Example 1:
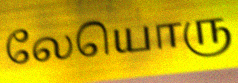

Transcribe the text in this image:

லேயொரு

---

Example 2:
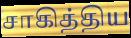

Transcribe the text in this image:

சாகித்திய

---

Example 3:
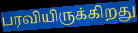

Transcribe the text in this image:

பரவியிருக்கிறது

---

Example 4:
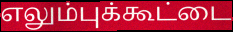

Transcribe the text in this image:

எலும்புக்கூட்டை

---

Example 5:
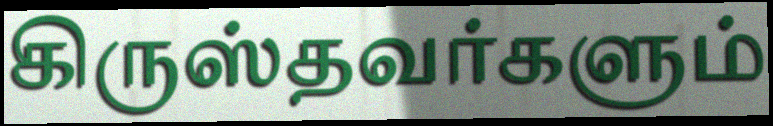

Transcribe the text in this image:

கிருஸ்தவர்களும்